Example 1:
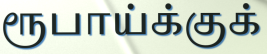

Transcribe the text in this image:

ரூபாய்க்குக்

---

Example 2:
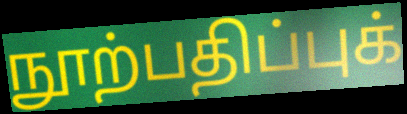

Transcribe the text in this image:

நூற்பதிப்புக்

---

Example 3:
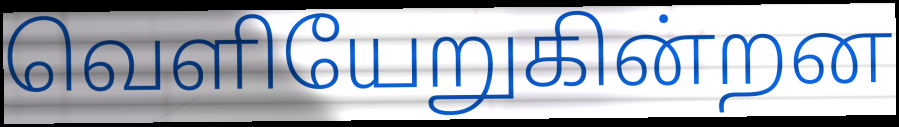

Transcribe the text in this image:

வெளியேறுகின்றன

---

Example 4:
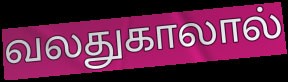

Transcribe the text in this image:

வலதுகாலால்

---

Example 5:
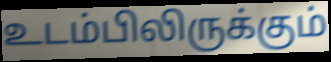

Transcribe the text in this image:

உடம்பிலிருக்கும்